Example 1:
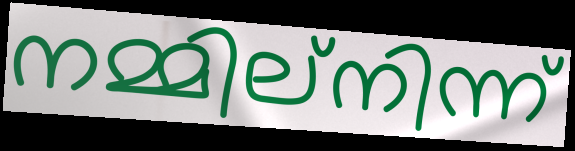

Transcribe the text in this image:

നമ്മില്നിന്ന്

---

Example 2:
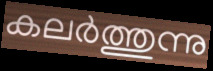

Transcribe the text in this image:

കലർത്തുന്നു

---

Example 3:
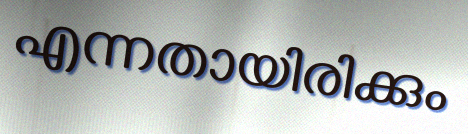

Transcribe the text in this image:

എന്നതായിരിക്കും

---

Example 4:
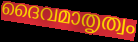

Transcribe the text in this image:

ദൈവമാതൃത്വം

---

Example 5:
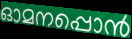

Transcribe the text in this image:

ഓമനപ്പൊൻ